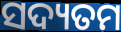
ସଦ୍ୟତମ